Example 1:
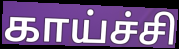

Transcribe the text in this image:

காய்ச்சி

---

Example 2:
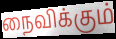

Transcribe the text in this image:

நைவிக்கும்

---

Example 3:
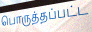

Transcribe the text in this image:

பொருத்தப்பட்ட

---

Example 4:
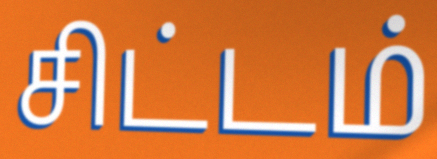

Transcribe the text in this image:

சிட்டம்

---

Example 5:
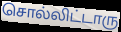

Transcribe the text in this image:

சொல்லிட்டாரு